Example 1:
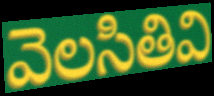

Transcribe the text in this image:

వెలసితివి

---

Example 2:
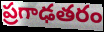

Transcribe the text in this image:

ప్రగాఢతరం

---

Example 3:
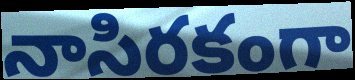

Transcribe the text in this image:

నాసిరకంగా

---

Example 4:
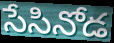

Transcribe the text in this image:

సేసినోడ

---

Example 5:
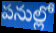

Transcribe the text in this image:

పనుల్లో